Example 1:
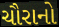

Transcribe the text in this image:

ચૌરાનો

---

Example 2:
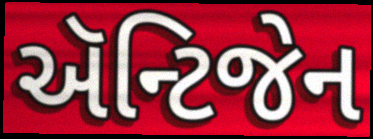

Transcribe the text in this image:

ઍન્ટિજેન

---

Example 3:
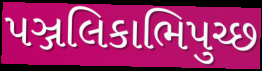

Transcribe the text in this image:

પઞ્જલિકાભિપુચ્છ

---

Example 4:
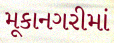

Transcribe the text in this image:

મૂકાનગરીમાં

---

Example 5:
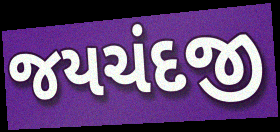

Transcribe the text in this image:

જયચંદજી